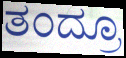
ತಂದ್ರೂ